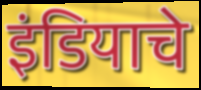
इंडियाचे